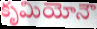
కృమియోనౌ